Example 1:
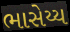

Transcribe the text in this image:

ભાસેય્ય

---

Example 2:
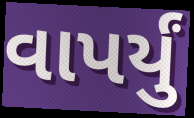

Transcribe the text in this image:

વાપર્યું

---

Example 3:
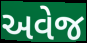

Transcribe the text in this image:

અવેજ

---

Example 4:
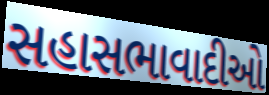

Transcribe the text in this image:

સહાસભાવાદીઓ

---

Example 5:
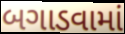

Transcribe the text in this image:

બગાડવામાં